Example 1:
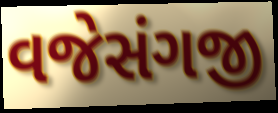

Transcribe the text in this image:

વજેસંગજી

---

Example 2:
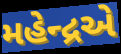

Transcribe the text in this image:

મહેન્દ્રએ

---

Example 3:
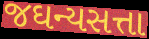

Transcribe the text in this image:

જઘન્યસત્તા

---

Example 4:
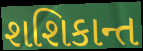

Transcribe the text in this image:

શશિકાન્ત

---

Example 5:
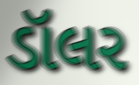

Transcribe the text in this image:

ડૉલર